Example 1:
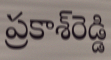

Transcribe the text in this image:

ప్రకాశ్‌రెడ్డి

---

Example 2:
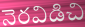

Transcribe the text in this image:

నెరవిడిచి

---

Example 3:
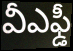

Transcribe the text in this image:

వీఎఫ్డీ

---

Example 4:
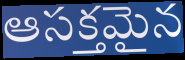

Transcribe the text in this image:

ఆసక్తమైన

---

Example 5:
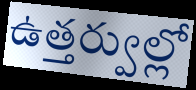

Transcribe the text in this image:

ఉత్తర్వుల్లో